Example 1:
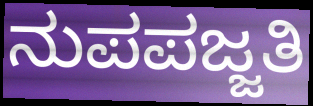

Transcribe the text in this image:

ನುಪಪಜ್ಜತಿ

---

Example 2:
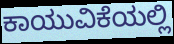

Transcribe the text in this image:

ಕಾಯುವಿಕೆಯಲ್ಲಿ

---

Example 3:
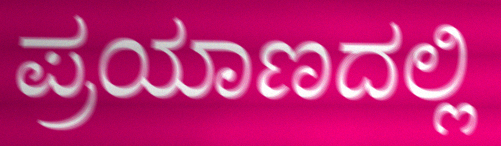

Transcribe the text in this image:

ಪ್ರಯಾಣದಲ್ಲಿ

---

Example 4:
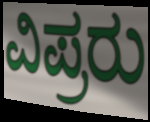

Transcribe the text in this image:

ವಿಪ್ರರು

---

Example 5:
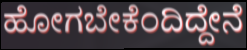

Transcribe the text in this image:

ಹೋಗಬೇಕೆಂದಿದ್ದೇನೆ